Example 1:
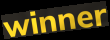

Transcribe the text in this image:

winner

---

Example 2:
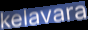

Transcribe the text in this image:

kelavara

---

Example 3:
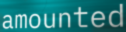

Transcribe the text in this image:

amounted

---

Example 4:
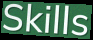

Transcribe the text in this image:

Skills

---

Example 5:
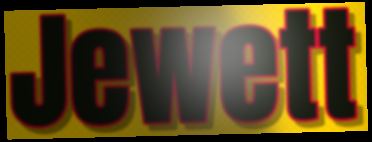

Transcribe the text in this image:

Jewett